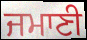
ਜਮਾਣੀ